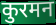
कुरमन